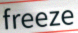
freeze